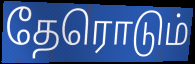
தேரொடும்